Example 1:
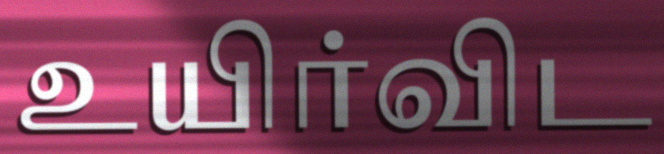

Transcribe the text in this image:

உயிர்விட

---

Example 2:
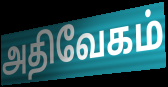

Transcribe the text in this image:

அதிவேகம்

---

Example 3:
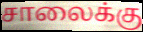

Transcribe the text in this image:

சாலைக்கு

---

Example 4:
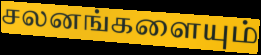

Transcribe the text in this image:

சலனங்களையும்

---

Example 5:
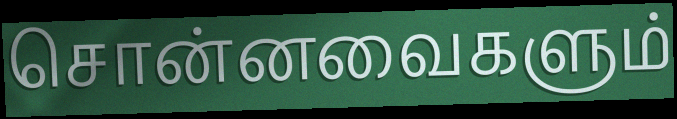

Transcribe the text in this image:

சொன்னவைகளும்